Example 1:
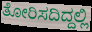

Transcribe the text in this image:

ತೋರಿಸದಿದ್ದಲ್ಲಿ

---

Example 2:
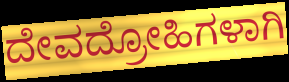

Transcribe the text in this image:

ದೇವದ್ರೋಹಿಗಳಾಗಿ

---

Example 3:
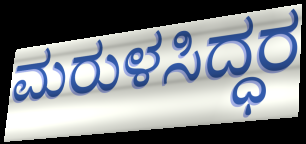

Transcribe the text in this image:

ಮರುಳಸಿದ್ಧರ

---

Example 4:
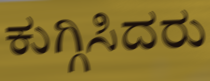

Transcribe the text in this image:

ಕುಗ್ಗಿಸಿದರು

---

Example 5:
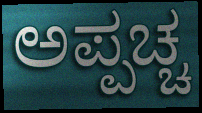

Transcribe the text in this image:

ಅಪ್ಪಚ್ಚ